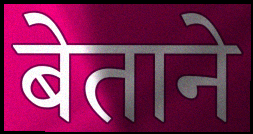
बेताने